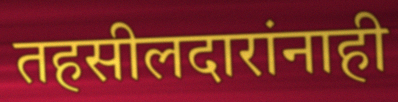
तहसीलदारांनाही